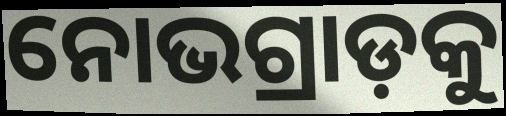
ନୋଭଗ୍ରାଡ଼କୁ